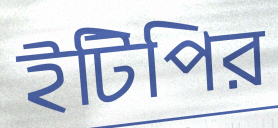
ইটিপির